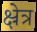
क्ष्रेत्र